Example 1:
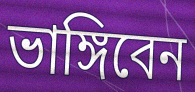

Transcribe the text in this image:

ভাঙ্গিবেন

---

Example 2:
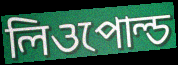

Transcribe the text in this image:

লিওপোল্ড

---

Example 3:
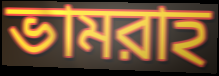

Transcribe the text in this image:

ভামরাহ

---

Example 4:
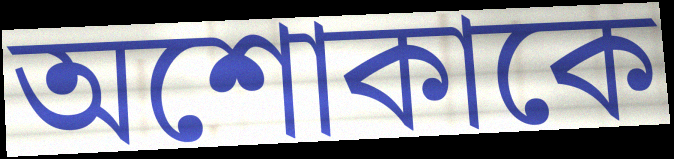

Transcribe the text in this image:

অশোকাকে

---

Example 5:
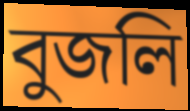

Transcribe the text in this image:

বুজলি